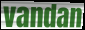
vandan